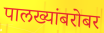
पालख्यांबरोबर